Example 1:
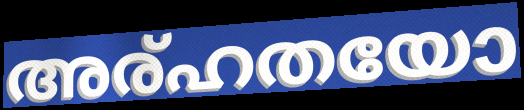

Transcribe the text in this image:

അര്ഹതയോ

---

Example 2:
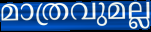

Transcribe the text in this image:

മാത്രവുമല്ല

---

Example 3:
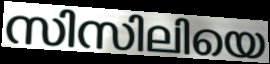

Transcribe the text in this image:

സിസിലിയെ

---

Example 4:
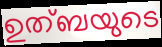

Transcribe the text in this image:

ഉത്ബയുടെ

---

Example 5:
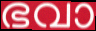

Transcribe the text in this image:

ഭവാ